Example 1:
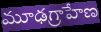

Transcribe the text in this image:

మూఢగ్రాహేణ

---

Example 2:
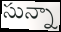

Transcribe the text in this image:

సున్నా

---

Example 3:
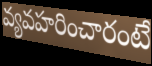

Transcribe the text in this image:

వ్యవహరించారంటే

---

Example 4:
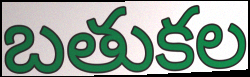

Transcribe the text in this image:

బతుకల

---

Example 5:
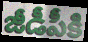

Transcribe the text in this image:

జీడీపీకి